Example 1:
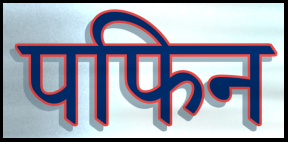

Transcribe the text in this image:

पफिन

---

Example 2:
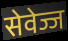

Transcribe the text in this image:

सेवेज्ज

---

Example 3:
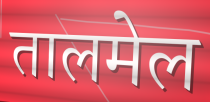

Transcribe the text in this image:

तालमेल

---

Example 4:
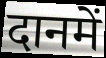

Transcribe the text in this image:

दानमें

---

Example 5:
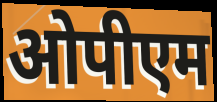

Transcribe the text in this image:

ओपीएम